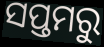
ସପ୍ତମରୁ